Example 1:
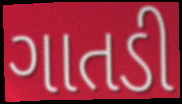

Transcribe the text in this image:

ગાતડી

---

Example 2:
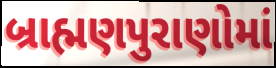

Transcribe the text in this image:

બ્રાહ્મણપુરાણોમાં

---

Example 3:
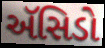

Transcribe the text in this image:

ઍસિડો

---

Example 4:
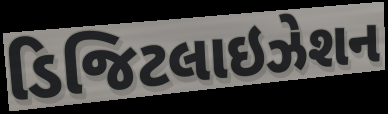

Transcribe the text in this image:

ડિજિટલાઇઝેશન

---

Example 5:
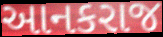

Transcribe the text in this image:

આનકરાજ